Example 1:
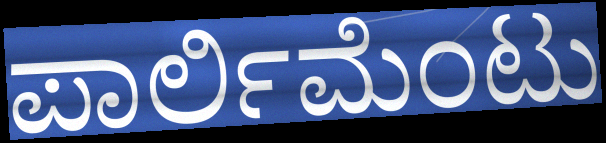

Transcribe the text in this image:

ಪಾರ್ಲಿಮೆಂಟು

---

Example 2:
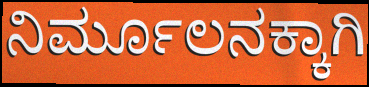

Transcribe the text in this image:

ನಿರ್ಮೂಲನಕ್ಕಾಗಿ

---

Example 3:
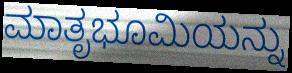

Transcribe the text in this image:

ಮಾತೃಭೂಮಿಯನ್ನು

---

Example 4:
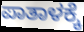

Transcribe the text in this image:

ಪಾತಾಳಕ್ಕೆ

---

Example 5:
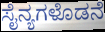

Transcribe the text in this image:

ಸೈನ್ಯಗಳೊಡನೆ